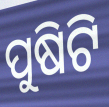
ପୁଷିଟି